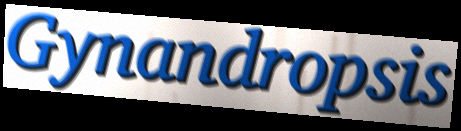
Gynandropsis